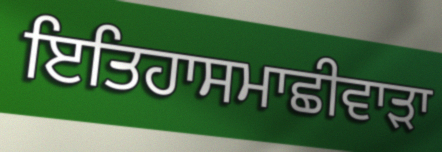
ਇਤਿਹਾਸਮਾਛੀਵਾੜਾ